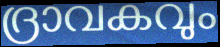
ദ്രാവകവും